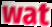
wat